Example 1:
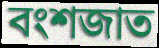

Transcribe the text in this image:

বংশজাত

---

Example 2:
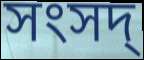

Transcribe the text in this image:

সংসদ্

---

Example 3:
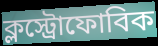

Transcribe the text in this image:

ক্লস্ট্রোফোবিক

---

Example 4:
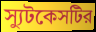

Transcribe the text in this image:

স্যুটকেসটির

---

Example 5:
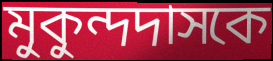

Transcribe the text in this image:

মুকুন্দদাসকে